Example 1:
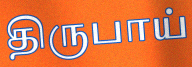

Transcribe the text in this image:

திருபாய்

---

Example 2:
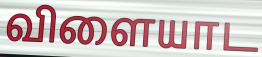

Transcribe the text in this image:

விளையாட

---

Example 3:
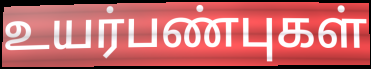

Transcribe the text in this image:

உயர்பண்புகள்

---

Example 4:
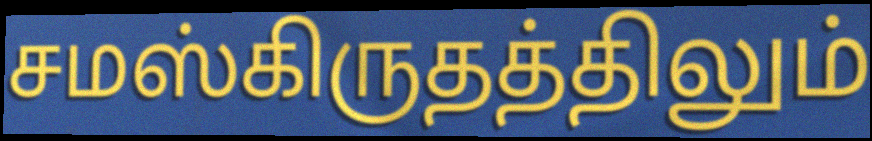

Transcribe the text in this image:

சமஸ்கிருதத்திலும்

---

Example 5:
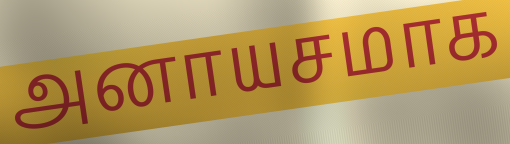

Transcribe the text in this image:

அனாயசமாக